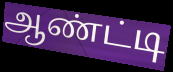
ஆண்ட்டி